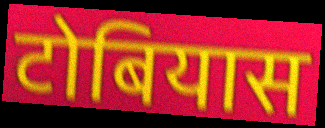
टोबियास